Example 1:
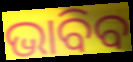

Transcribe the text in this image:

ଭାବିବ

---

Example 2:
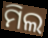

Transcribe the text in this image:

ମିଲ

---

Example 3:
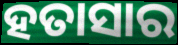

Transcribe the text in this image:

ହତାସାର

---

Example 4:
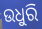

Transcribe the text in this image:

ଉଧୁରି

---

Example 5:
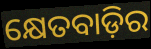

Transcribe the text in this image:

କ୍ଷେତବାଡ଼ିର